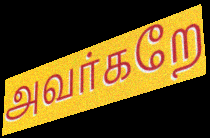
அவர்கறே